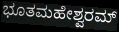
ಭೂತಮಹೇಶ್ವರಮ್